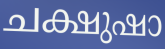
ചക്ഷുഷാ